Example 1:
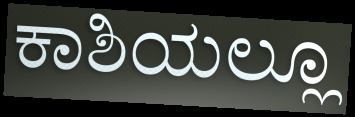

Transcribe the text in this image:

ಕಾಶಿಯಲ್ಲೂ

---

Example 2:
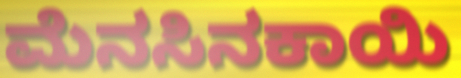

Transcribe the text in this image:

ಮೆನಸಿನಕಾಯಿ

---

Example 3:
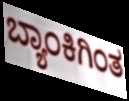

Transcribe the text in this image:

ಬ್ಯಾಂಕಿಗಿಂತ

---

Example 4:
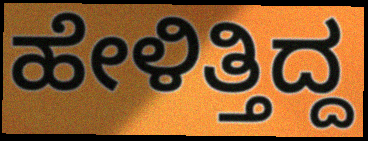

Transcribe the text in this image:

ಹೇಳಿತ್ತಿದ್ದ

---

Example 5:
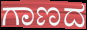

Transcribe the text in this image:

ಗಾಣದ